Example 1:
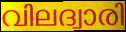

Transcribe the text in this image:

വിലദ്വാരി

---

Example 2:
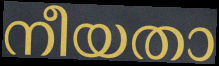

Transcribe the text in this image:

നീയതാ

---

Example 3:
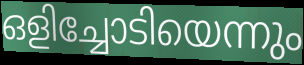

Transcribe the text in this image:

ഒളിച്ചോടിയെന്നും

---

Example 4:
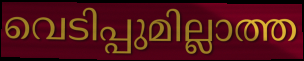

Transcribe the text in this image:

വെടിപ്പുമില്ലാത്ത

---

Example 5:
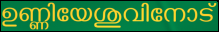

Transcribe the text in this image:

ഉണ്ണിയേശുവിനോട്